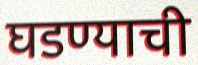
घडण्याची